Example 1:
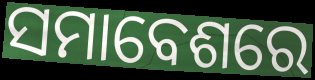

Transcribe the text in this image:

ସମାବେଶରେ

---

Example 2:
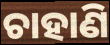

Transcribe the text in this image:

ଚାହାଣି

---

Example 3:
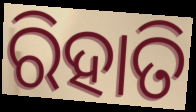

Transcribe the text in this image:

ରିହାତି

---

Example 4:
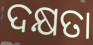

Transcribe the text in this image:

ଦକ୍ଷତା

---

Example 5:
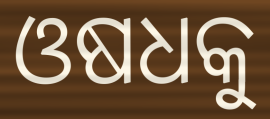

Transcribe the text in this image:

ଓଷଧକୁ